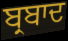
ਬ੍ਰਬਾਦ